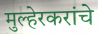
मुल्हेरकरांचे